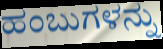
ಹಂಬುಗಳನ್ನು